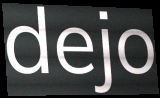
dejo